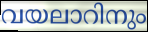
വയലാറിനും